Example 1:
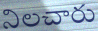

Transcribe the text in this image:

నిలచారు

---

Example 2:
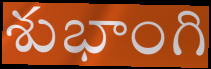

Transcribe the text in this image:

శుభాంగి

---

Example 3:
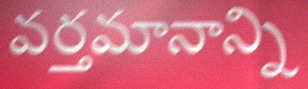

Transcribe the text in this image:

వర్తమానాన్ని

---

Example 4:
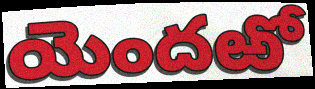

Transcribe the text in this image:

యెందఱో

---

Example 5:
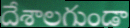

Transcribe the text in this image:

దేశాలగుండా